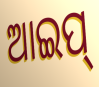
ଆଇପ୍